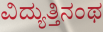
ವಿದ್ಯುತ್ತಿನಂಥ